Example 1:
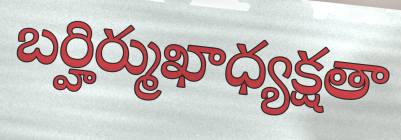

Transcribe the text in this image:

బర్హిర్ముఖాధ్యక్షతా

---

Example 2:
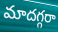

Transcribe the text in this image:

మాదగ్గరా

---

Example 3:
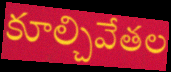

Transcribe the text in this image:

కూల్చివేతల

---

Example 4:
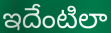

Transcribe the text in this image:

ఇదేంటిలా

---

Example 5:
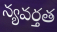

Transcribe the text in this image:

న్యవర్తత